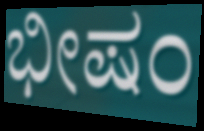
ಭೀಷಂ